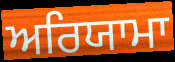
ਅਰਿਯਾਮਾ